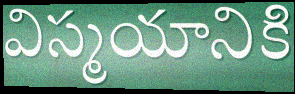
విస్మయానికి